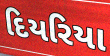
દિયરિયા